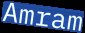
Amram